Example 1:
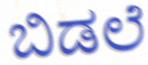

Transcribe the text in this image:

ಬಿಡಲೆ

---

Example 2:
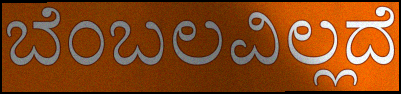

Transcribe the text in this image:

ಬೆಂಬಲವಿಲ್ಲದೆ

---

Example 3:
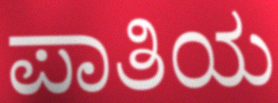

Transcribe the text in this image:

ಪಾತಿಯ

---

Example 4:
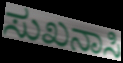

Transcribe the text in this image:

ಸುಖನಾಸಿ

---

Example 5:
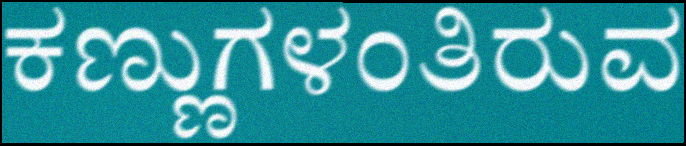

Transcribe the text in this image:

ಕಣ್ಣುಗಳಂತಿರುವ